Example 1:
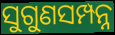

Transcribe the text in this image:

ସୁଗୁଣସମ୍ପନ୍ନ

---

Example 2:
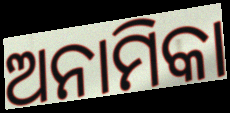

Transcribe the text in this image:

ଅନାମିକା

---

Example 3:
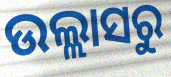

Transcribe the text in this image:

ଉଲ୍ଲାସରୁ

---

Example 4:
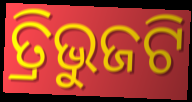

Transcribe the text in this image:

ତ୍ରିଭୁଜଟି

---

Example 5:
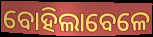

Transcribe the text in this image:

ବୋହିଲାବେଳେ